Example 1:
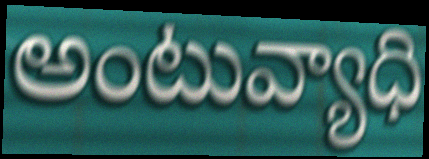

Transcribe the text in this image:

అంటువ్యాధి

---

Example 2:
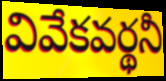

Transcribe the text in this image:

వివేకవర్థనీ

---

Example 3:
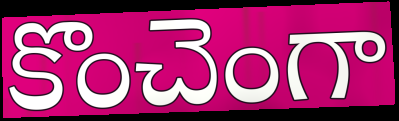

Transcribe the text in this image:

కొంచెంగా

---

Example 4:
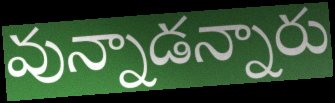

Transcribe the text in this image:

వున్నాడన్నారు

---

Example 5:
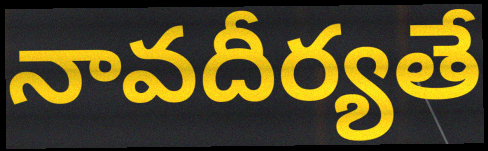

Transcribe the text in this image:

నావదీర్యతే